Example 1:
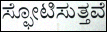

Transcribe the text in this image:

ಸ್ಫೋಟಿಸುತ್ತವೆ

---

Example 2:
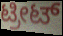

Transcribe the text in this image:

ಟ್ರೀಟ್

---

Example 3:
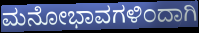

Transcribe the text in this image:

ಮನೋಭಾವಗಳಿಂದಾಗಿ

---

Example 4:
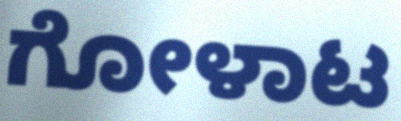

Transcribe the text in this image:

ಗೋಳಾಟ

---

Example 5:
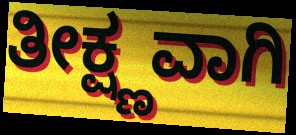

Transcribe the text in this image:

ತೀಕ್ಷ್ಣವಾಗಿ